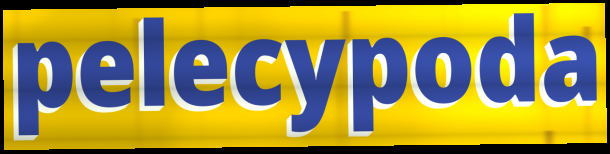
pelecypoda